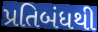
પ્રતિબંધથી